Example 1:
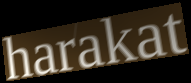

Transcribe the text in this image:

harakat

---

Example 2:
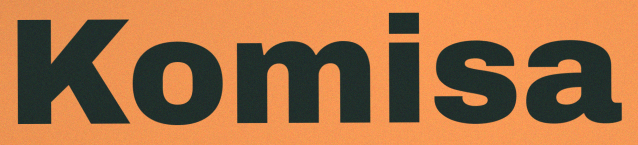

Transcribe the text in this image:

Komisa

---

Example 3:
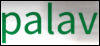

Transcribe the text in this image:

palav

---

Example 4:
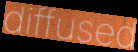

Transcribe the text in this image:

diffused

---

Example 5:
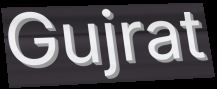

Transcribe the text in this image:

Gujrat